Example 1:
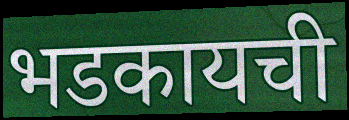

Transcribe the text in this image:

भडकायची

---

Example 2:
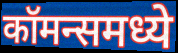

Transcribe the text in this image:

कॉमन्समध्ये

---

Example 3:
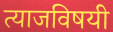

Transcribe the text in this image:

त्याजविषयी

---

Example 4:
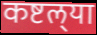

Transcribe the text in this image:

कष्टल्या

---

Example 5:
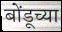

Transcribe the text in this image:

बोंडूच्या